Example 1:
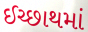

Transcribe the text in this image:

ઈચ્છાથમાં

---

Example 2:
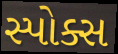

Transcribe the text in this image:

સ્પોક્સ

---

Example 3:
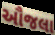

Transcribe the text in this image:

ઔજલા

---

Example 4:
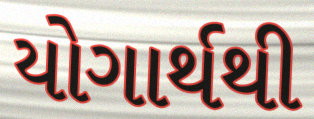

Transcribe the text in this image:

યોગાર્થથી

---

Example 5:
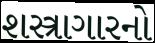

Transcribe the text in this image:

શસ્ત્રાગારનો